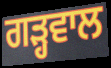
ਗੜ੍ਹਵਾਲ